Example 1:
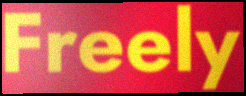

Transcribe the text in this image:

Freely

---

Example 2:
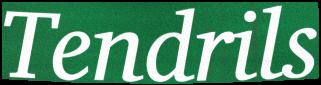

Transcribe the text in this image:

Tendrils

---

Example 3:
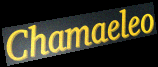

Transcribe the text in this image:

Chamaeleo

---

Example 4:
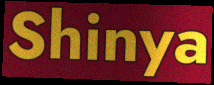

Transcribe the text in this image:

Shinya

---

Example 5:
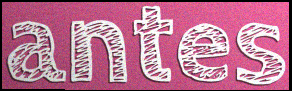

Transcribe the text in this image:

antes